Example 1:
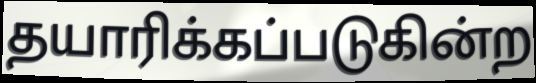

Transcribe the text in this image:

தயாரிக்கப்படுகின்ற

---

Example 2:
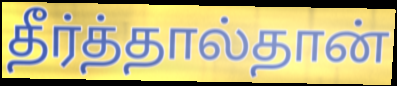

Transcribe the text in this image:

தீர்த்தால்தான்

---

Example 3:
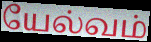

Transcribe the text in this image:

யேல்வம்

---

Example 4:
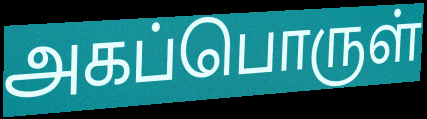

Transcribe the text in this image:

அகப்பொருள்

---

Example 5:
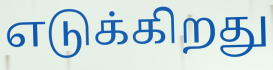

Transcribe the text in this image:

எடுக்கிறது